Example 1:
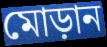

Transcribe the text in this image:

মোড়ান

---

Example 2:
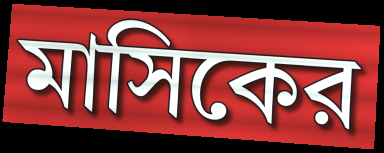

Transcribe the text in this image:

মাসিকের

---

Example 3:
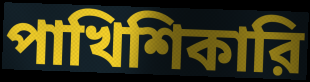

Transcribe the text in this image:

পাখিশিকারি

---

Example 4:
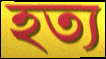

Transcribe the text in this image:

হত্য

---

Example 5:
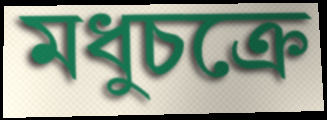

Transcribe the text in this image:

মধুচক্রে